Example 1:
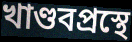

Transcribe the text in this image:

খাণ্ডবপ্রস্থে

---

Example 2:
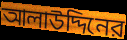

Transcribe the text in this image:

আলাউদ্দিনের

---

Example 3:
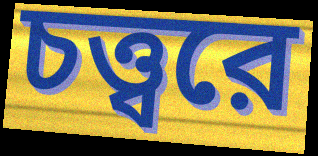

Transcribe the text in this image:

চত্ত্বরে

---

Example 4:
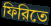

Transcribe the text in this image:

ফিরিতে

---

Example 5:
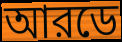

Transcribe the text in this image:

আরডে